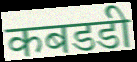
कबडडी